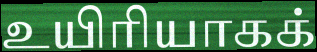
உயிரியாகக்